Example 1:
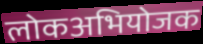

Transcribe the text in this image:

लोकअभियोजक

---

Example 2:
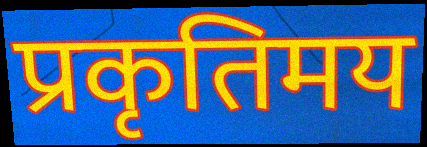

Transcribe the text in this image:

प्रकृतिमय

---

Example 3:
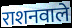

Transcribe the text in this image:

राशनवाले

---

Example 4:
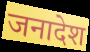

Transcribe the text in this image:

जनादेश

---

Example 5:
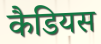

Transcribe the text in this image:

कैडियस